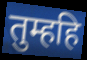
तुम्हहि